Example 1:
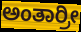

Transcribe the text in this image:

ಅಂತಾರ್ರೀ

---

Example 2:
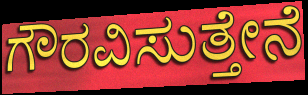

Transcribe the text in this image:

ಗೌರವಿಸುತ್ತೇನೆ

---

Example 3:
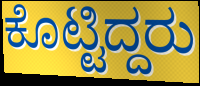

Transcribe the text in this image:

ಕೊಟ್ಟಿದ್ದರು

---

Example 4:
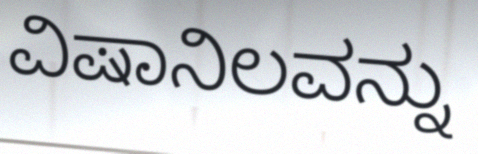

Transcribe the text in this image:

ವಿಷಾನಿಲವನ್ನು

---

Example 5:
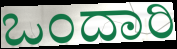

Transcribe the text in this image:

ಒಂದಾರಿ